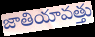
జాతియావత్తు